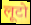
लूटो